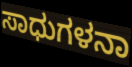
ಸಾಧುಗಳನಾ